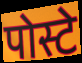
पोस्टे